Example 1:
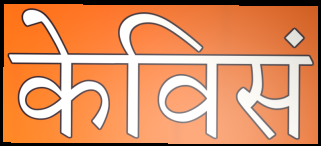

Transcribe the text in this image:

केविसं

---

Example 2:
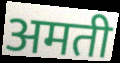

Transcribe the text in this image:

अमती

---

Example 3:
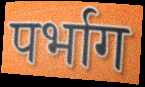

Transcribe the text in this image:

पर्भाग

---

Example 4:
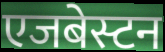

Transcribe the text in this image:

एजबेस्‍टन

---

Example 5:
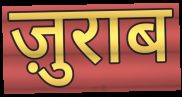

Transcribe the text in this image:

ज़ुराब